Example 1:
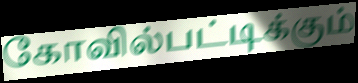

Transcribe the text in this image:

கோவில்பட்டிக்கும்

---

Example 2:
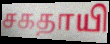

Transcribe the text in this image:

சகதாயி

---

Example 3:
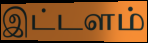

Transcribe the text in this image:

இட்டளம்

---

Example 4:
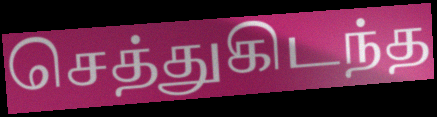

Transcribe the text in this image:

செத்துகிடந்த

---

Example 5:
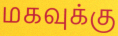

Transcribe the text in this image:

மகவுக்கு